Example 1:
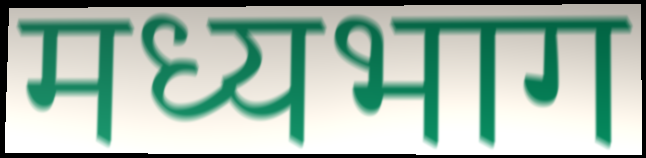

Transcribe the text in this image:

मध्यभाग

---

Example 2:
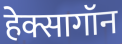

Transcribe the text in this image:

हेक्सागॉन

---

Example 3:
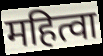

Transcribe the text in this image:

महित्वा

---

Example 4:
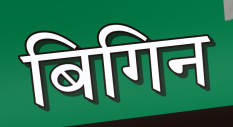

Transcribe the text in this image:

बिगिन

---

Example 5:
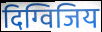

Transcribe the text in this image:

दिग्विजिय